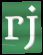
rj